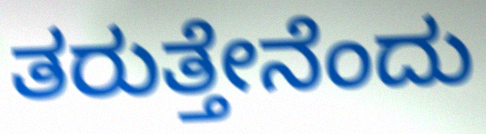
ತರುತ್ತೇನೆಂದು